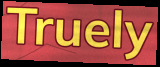
Truely